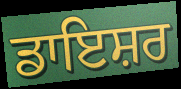
ਡਾਇਸ਼ਰ